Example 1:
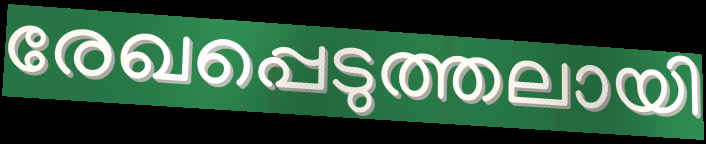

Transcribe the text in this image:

രേഖപ്പെടുത്തലായി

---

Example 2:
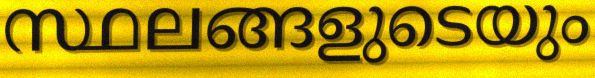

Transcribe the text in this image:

സ്ഥലങ്ങളുടെയും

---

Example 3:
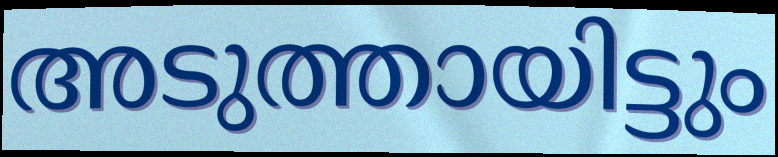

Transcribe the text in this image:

അടുത്തായിട്ടും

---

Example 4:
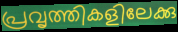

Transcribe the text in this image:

പ്രവൃത്തികളിലേക്കു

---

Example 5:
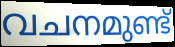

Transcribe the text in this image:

വചനമുണ്ട്